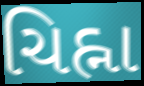
ચિહ્ના